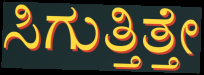
ಸಿಗುತ್ತಿತ್ತೇ